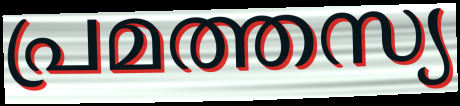
പ്രമത്തസ്യ